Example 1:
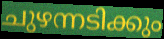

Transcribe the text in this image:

ചുഴന്നടിക്കും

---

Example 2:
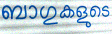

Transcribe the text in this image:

ബാഗുകളുടെ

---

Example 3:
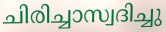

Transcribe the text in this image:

ചിരിച്ചാസ്വദിച്ചു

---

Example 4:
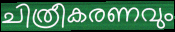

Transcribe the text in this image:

ചിത്രീകരണവും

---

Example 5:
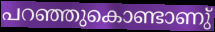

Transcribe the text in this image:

പറഞ്ഞുകൊണ്ടാണു്